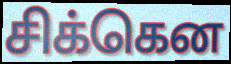
சிக்கென